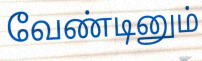
வேண்டினும்